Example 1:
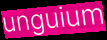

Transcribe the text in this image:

unguium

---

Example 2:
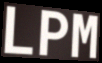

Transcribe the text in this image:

LPM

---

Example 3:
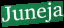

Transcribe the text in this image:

Juneja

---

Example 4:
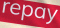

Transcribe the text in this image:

repay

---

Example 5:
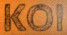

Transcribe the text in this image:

KOI